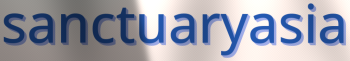
sanctuaryasia